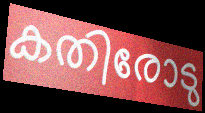
കതിരോടു